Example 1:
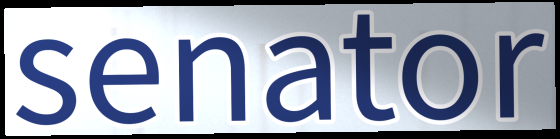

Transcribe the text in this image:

senator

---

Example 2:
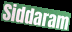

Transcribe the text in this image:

Siddaram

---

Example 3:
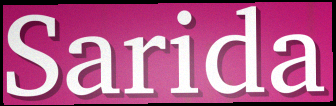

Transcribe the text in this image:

Sarida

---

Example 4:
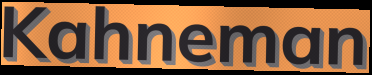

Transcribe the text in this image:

Kahneman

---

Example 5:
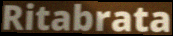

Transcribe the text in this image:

Ritabrata